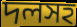
দলসহ